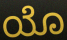
ಯೊ